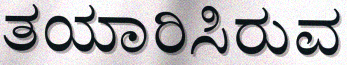
ತಯಾರಿಸಿರುವ